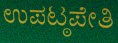
ಉಪಟ್ಠಪೇತಿ